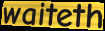
waiteth